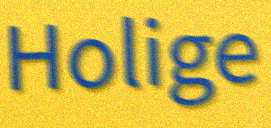
Holige